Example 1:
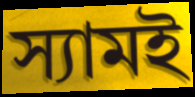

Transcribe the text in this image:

স্যামই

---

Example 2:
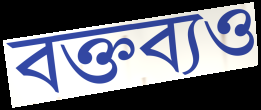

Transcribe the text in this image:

বক্তব্যও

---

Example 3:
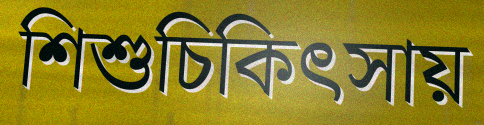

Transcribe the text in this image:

শিশুচিকিৎসায়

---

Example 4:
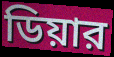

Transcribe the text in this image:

ডিয়ার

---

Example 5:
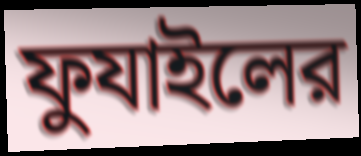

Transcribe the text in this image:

ফুযাইলের